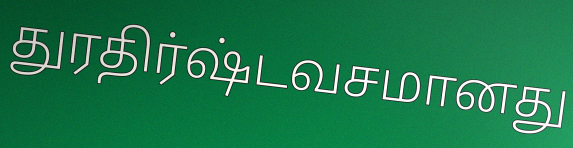
துரதிர்ஷ்டவசமானது